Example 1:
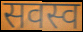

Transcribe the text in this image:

सवस्व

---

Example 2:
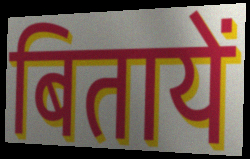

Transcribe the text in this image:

बितायें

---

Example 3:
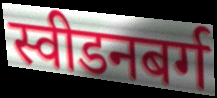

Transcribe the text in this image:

स्वीडनबर्ग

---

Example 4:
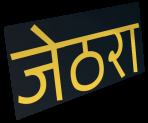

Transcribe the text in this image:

जेठरा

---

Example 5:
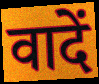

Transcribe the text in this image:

वादें